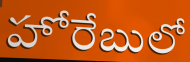
హోరేబులో